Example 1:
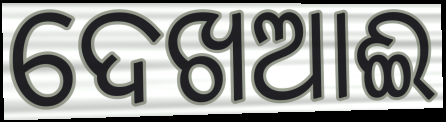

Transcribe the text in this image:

ଦେଖଆଈ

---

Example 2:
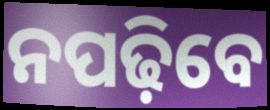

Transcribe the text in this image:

ନପଢ଼ିବେ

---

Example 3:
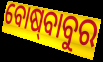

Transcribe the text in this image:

ବୋଷ୍‍ବାବୁର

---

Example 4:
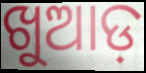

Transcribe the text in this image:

ଖୁଆଡ଼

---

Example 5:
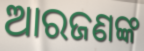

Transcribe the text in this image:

ଆରଜଣଙ୍କ